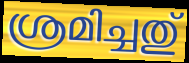
ശ്രമിച്ചതു്